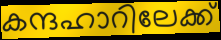
കന്ദഹാറിലേക്ക്